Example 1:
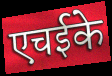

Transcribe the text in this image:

एचईके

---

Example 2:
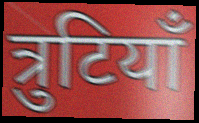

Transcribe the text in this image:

त्रुटियाँ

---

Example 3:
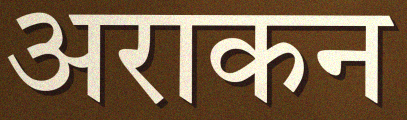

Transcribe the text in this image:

अराकन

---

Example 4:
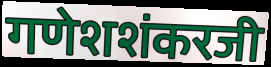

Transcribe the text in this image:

गणेशशंकरजी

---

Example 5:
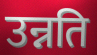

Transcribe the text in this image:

उन्नति